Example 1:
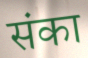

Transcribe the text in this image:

संका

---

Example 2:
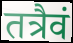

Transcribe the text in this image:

तत्रैवं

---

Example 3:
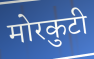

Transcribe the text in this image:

मोरकुटी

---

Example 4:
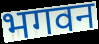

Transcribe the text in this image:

भगवन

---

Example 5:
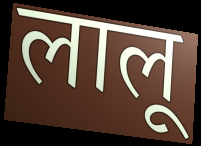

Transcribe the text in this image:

लालू